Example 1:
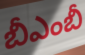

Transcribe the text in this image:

బీఎంబీ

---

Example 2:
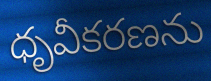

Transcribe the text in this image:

ధృవీకరణను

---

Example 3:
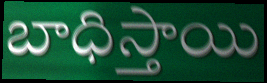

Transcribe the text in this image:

బాధిస్తాయి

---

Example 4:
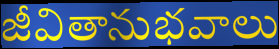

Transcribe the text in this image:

జీవితానుభవాలు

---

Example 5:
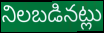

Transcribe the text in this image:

నిలబడినట్లు